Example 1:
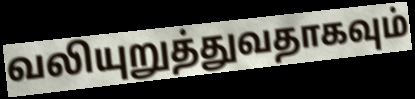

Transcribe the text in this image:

வலியுறுத்துவதாகவும்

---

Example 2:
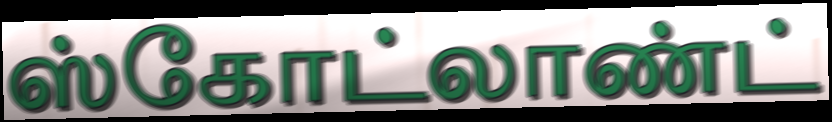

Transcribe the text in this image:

ஸ்கோட்லாண்ட்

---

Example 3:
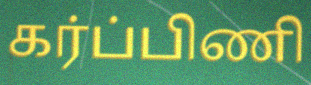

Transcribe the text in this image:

கர்ப்பிணி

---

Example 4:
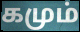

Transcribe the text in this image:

கமும்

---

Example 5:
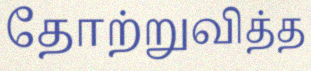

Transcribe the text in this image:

தோற்றுவித்த